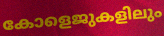
കോളെജുകളിലും